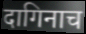
दागिनाच